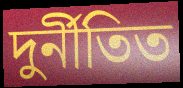
দুৰ্নীতিত